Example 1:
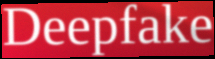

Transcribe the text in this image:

Deepfake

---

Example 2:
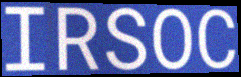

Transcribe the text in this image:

IRSOC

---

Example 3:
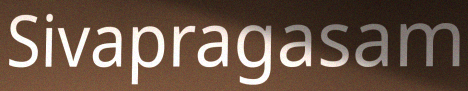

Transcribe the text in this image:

Sivapragasam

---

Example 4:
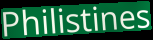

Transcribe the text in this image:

Philistines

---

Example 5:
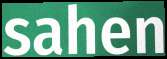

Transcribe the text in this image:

sahen